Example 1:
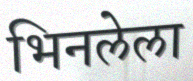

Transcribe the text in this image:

भिनलेला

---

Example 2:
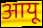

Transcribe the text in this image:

आयू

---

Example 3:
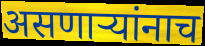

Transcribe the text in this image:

असणार्‍यांनाच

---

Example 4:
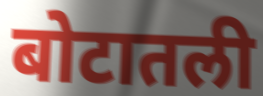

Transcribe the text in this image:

बोटातली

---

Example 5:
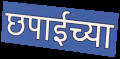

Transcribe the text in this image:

छपाईच्या